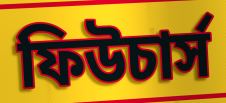
ফিউচার্স